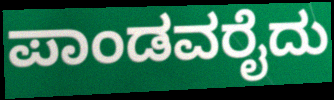
ಪಾಂಡವರೈದು